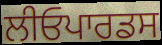
ਲੀਓਪਾਰਡਸ